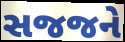
સજજને